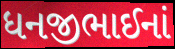
ધનજીભાઈનાં